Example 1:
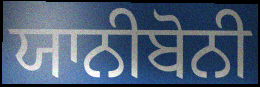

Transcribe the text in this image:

ਯਾਨੀਬੋਨੀ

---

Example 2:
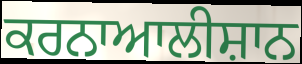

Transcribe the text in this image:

ਕਰਨਾਆਲੀਸ਼ਾਨ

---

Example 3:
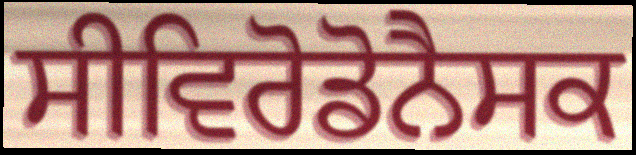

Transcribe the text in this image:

ਸੀਵਿਰੋਡੋਨੈਸਕ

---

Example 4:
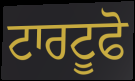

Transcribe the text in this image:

ਟਾਰਟੂਫੋ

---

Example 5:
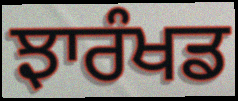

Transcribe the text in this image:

ਝਾਰੰਖਡ